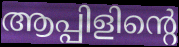
ആപ്പിളിന്റെ